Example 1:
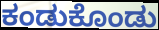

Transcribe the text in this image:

ಕಂಡುಕೊಂಡು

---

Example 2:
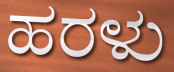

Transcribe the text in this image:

ಹರಳು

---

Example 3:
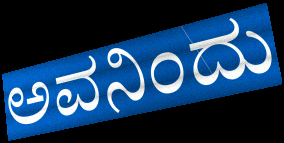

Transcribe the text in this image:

ಅವನಿಂದು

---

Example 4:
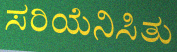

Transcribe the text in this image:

ಸರಿಯೆನಿಸಿತು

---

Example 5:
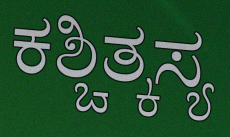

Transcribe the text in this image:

ಕಶ್ಚಿತ್ಕಸ್ಯ